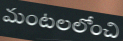
మంటలలోంచి